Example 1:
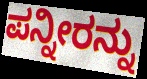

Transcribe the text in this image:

ಪನ್ನೀರನ್ನು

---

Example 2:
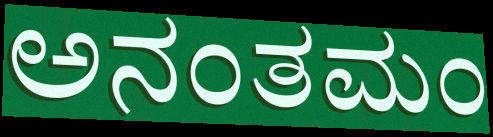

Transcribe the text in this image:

ಅನಂತಮಂ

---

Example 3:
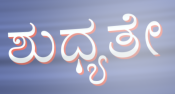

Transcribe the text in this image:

ಶುಧ್ಯತೇ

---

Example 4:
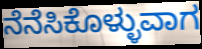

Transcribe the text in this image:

ನೆನೆಸಿಕೊಳ್ಳುವಾಗ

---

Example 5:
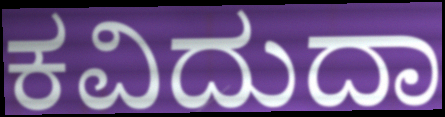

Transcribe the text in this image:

ಕವಿದುದಾ